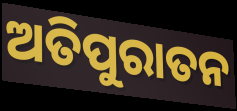
ଅତିପୁରାତନ